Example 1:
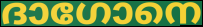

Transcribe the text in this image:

ദാഗോനെ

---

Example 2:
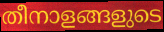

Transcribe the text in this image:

തീനാളങ്ങളുടെ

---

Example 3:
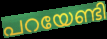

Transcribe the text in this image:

പറയേണ്ടി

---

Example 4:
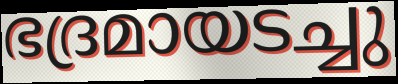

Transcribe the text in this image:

ഭദ്രമായടച്ചു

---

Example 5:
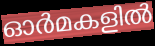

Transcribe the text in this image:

ഓർമകളിൽ